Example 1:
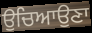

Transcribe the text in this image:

ਉਚਿਆਉਣਾ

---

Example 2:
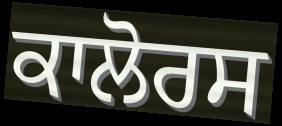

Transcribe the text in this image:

ਕਾਲੋਰਸ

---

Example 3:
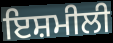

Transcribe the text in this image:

ਇਸ਼ਮੀਲੀ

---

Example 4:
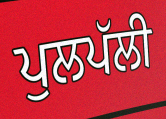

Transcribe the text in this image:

ਪੁਲਪੱਲੀ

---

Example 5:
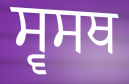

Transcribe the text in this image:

ਸ੍ਵਸਥ